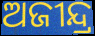
ଅଜୀନ୍ଦ୍ର